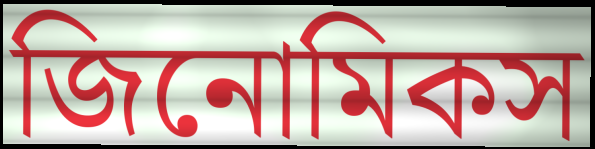
জিনোমিকস